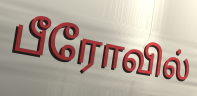
பீரோவில்